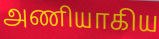
அணியாகிய